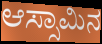
ಆಸ್ಸಾಮಿನ